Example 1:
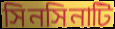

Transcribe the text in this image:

সিনসিনাটি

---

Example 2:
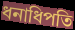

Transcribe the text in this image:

ধনাধিপতি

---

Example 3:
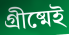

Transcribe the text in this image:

গ্রীষ্মেই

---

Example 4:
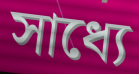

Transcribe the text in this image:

সাধ্যে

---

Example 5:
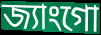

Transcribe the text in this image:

জ্যাংগো